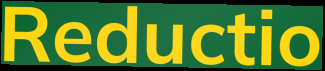
Reductio